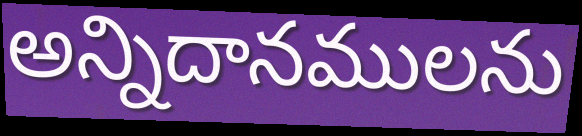
అన్నిదానములను